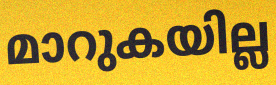
മാറുകയില്ല